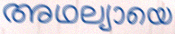
അഥല്യായെ